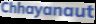
Chhayanaut